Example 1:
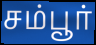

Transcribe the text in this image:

சம்பூர்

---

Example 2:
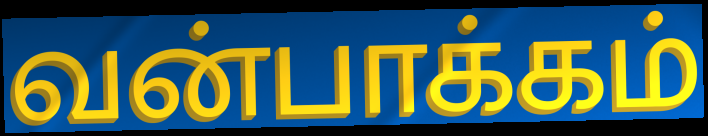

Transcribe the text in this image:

வன்பாக்கம்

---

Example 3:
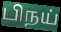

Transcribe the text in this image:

பிநய்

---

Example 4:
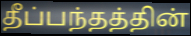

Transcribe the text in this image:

தீப்பந்தத்தின்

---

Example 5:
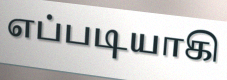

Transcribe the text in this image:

எப்படியாகி